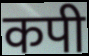
कपी